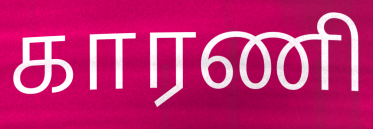
காரணி